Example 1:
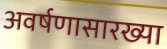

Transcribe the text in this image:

अवर्षणासारख्या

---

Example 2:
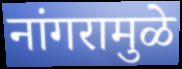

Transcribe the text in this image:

नांगरामुळे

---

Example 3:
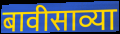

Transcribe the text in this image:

बावीसाव्या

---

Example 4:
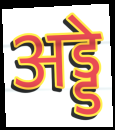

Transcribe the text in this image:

अड्डे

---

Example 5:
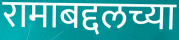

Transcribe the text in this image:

रामाबद्दलच्या